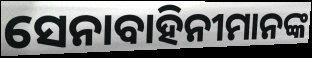
ସେନାବାହିନୀମାନଙ୍କ